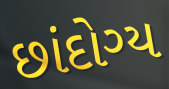
છાંદોગ્ય